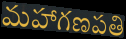
మహాగణపతి